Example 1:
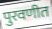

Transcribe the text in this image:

पुरवणीत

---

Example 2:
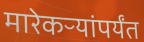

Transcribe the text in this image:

मारेकऱ्यांपर्यंत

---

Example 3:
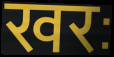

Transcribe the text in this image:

खरः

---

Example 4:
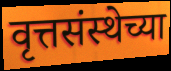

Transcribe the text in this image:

वृत्तसंस्थेच्या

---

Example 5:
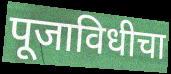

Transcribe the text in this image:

पूजाविधीचा